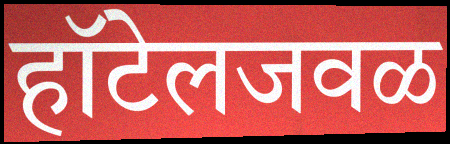
हॉटेलजवळ